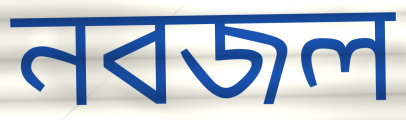
নবজল